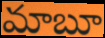
మాబూ